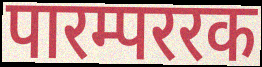
पारम्पररक